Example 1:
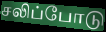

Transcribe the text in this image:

சலிப்போடு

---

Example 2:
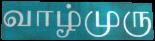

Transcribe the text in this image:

வாழ்முரு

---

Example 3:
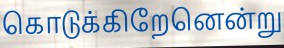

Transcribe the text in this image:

கொடுக்கிறேனென்று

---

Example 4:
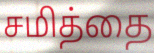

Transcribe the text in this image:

சமித்தை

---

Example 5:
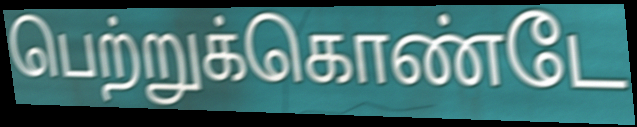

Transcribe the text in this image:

பெற்றுக்கொண்டே